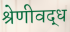
श्रेणीवद्ध